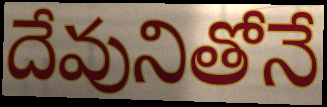
దేవునితోనే